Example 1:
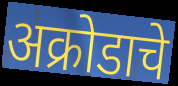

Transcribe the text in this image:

अक्रोडाचे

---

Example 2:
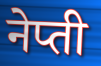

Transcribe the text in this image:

नेप्ती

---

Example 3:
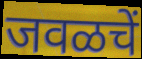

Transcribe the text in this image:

जवळचें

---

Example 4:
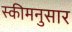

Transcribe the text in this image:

स्कीमनुसार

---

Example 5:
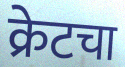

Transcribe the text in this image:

क्रेटचा